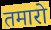
तमारो